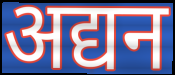
अद्यन